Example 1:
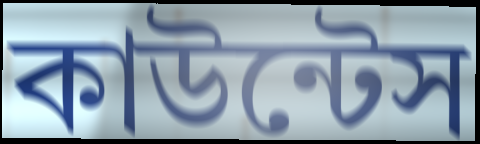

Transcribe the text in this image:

কাউন্টেস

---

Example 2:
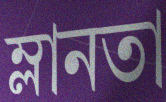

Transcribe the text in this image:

ম্লানতা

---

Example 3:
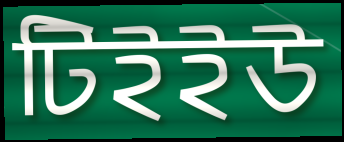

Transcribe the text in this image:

টিইইউ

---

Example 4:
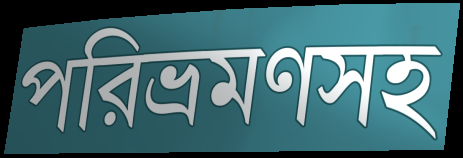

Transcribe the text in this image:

পরিভ্রমণসহ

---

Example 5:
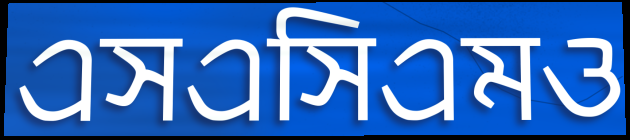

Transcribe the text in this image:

এসএসিএমও